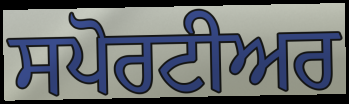
ਸਪੋਰਟੀਅਰ